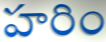
హరిం